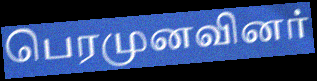
பெரமுனவினர்